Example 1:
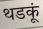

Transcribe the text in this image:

थडकूं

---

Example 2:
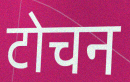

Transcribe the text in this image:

टोचन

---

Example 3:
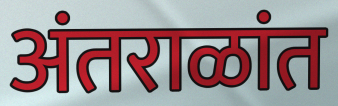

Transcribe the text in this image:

अंतराळांत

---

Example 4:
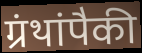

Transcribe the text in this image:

ग्रंथांपैकी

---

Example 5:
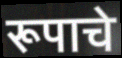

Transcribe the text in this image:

रूपाचे